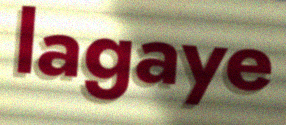
lagaye